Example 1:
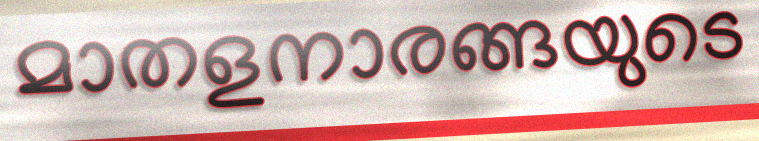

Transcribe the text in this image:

മാതളനാരങ്ങയുടെ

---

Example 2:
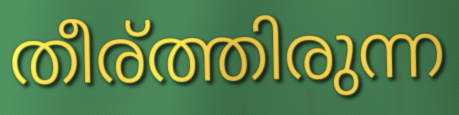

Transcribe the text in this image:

തീര്ത്തിരുന്ന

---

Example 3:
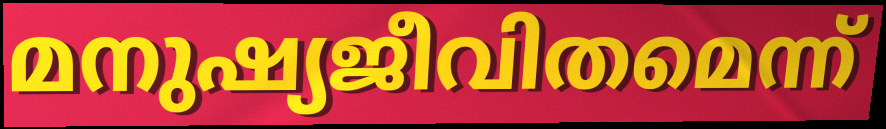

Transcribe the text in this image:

മനുഷ്യജീവിതമെന്ന്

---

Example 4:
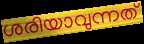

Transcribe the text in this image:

ശരിയാവുന്നത്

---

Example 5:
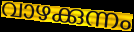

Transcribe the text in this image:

വാഴക്കുന്നം